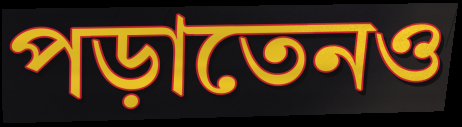
পড়াতেনও